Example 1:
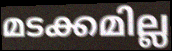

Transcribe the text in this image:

മടക്കമില്ല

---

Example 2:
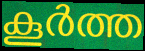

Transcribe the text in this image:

കൂർത്ത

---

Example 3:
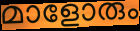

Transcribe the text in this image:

മാളോരും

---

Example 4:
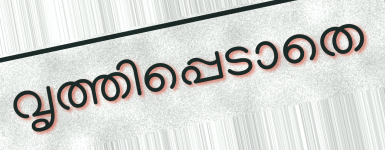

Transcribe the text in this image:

വൃത്തിപ്പെടാതെ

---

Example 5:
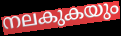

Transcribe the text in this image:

നലകുകയും